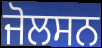
ਜੋਲਸਨ